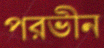
পরভীন